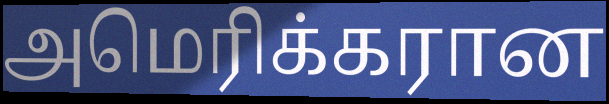
அமெரிக்கரான